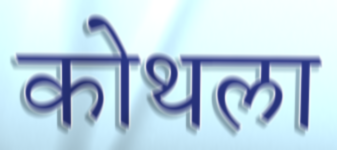
कोथला